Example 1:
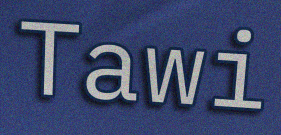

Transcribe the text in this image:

Tawi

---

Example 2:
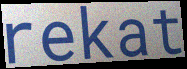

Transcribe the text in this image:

rekat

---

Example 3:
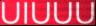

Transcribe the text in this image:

UIUUU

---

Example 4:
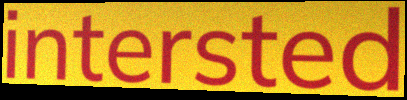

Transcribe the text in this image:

intersted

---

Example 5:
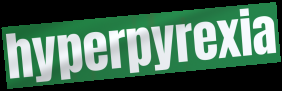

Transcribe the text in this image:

hyperpyrexia